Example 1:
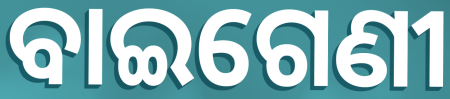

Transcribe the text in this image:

ବାଇଗେଣୀ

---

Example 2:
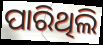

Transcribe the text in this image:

ପାରିଥିଲି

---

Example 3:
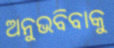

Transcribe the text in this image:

ଅନୁଭବିବାକୁ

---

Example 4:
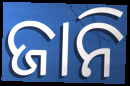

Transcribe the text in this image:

ଜାନି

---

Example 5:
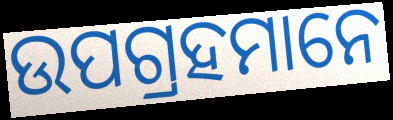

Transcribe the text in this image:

ଉପଗ୍ରହମାନେ